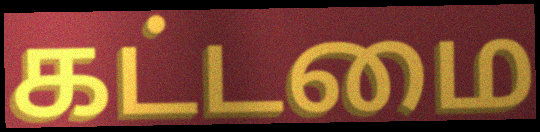
கட்டமை